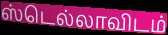
ஸ்டெல்லாவிடம்